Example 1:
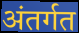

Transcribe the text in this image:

अंतर्गत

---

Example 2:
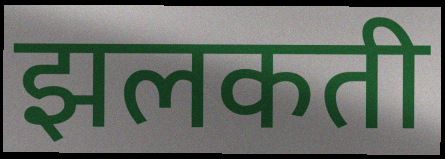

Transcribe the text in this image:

झलकती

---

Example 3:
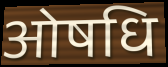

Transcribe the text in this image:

ओषधि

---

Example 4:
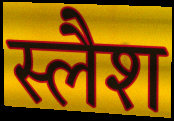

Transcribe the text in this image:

स्लैश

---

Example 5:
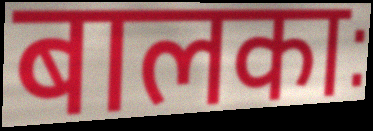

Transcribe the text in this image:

बालकाः